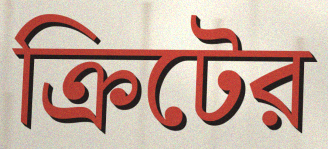
ক্রিটের